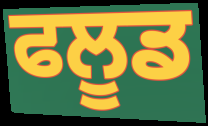
ਫਲੂਡ